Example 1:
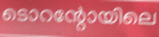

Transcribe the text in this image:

ടൊറന്റോയിലെ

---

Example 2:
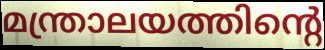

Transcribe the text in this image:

മന്ത്രാലയത്തിന്റെ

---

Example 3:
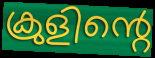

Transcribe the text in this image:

ക്രുളിന്റെ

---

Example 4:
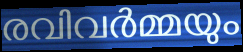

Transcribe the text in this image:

രവിവർമ്മയും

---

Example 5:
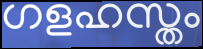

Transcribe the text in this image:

ഗളഹസ്തം